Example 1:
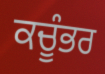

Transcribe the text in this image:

ਕਚੂੰਭਰ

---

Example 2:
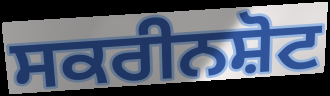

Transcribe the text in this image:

ਸਕਰੀਨਸ਼ੋਟ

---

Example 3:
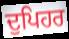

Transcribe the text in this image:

ਦੁਪਿਹਰ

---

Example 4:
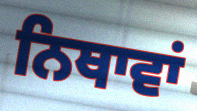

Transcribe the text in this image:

ਨਿਥਾਵਾਂ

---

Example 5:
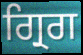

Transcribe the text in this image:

ਗ੍ਰਿਗ